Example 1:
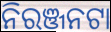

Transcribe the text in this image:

ନିରଞ୍ଜନଟା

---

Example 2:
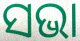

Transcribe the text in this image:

ସଭା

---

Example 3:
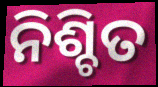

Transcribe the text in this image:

ନିଶ୍ଚିତ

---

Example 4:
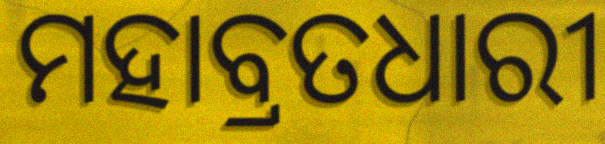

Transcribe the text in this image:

ମହାବ୍ରତଧାରୀ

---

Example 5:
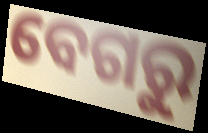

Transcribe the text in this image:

ବେଗରୁ